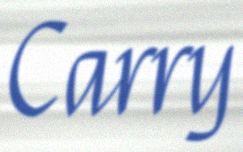
Carry